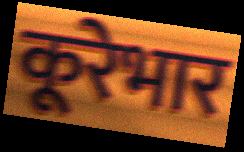
कूरेभार